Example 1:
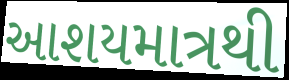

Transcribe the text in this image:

આશયમાત્રથી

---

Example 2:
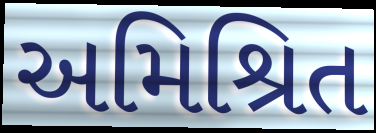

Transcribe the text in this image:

અમિશ્રિત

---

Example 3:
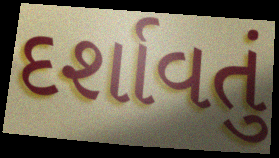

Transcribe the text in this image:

દર્શાવતું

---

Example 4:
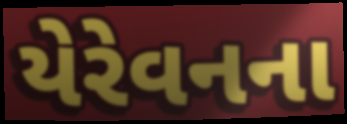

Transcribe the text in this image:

યેરેવનના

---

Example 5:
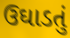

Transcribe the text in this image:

ઉઘાડતું